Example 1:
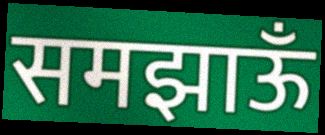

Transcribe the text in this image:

समझाऊँ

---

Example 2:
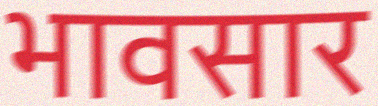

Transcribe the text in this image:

भावसार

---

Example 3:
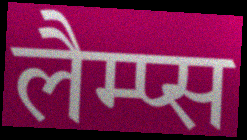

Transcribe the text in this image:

लैम्प्स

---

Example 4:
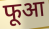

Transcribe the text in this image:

फूआ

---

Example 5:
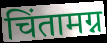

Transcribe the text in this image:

चिंतामग्न